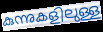
കുന്നുകളിലുള്ള